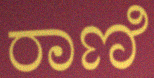
ರಾಣಿ